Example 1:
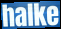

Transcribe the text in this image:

halke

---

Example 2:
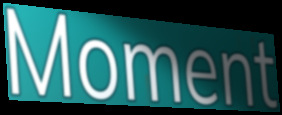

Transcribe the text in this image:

Moment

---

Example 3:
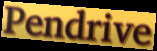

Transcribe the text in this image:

Pendrive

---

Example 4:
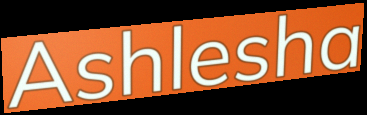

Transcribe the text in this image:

Ashlesha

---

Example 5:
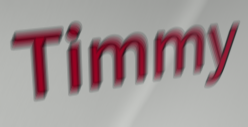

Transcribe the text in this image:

Timmy